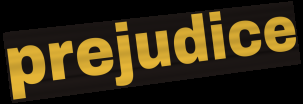
prejudice